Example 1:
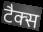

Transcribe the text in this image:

टैक्‍स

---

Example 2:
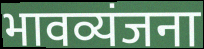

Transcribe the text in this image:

भावव्यंजना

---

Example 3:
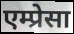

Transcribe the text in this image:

एम्प्रेसा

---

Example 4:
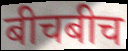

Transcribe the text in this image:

बीचबीच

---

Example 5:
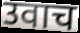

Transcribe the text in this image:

उवाच